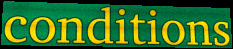
conditions